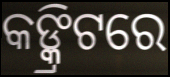
କଙ୍କ୍ରିଟରେ